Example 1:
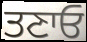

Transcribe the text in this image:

ਤਣਾਓ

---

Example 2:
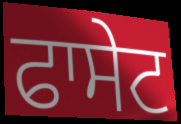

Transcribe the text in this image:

ਫਾਸੇਟ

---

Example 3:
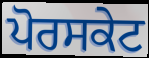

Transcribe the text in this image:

ਪੋਰਸਕੇਟ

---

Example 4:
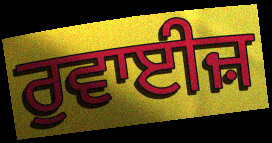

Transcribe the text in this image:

ਰੁਵਾਈਜ਼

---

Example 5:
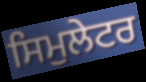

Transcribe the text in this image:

ਸਿਮੁਲੇਟਰ